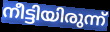
നീട്ടിയിരുന്ന്